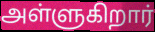
அள்ளுகிறார்